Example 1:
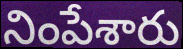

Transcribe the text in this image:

నింపేశారు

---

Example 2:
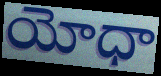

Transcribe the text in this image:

యోధా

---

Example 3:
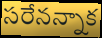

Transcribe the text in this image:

సరేనన్నాక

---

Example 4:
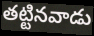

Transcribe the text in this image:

తట్టినవాడు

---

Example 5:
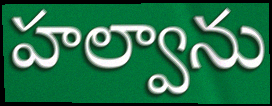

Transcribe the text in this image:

హల్వాను